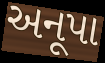
અનૂપા